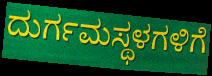
ದುರ್ಗಮಸ್ಥಳಗಳಿಗೆ